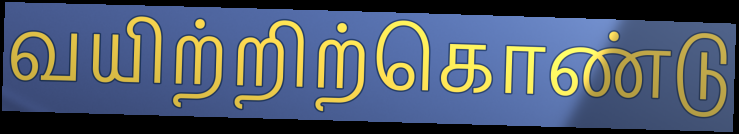
வயிற்றிற்கொண்டு